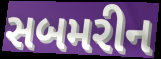
સબમરીન